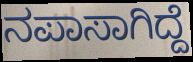
ನಪಾಸಾಗಿದ್ದೆ